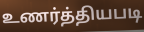
உணர்த்தியபடி